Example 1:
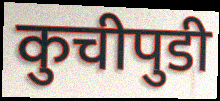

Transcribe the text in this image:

कुचीपुडी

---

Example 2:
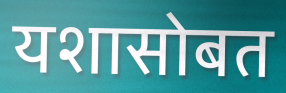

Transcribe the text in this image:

यशासोबत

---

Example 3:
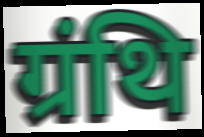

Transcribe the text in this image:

ग्रंथि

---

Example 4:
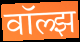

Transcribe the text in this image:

वॉल्झ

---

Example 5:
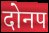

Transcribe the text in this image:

दोनप